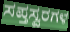
ಸಪ್ತಸ್ವರಗಳ